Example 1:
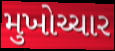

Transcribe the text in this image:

મુખોચ્ચાર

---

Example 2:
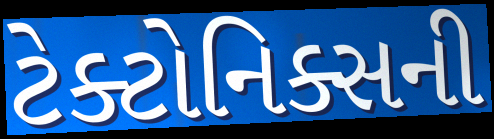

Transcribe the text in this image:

ટેક્ટોનિક્સની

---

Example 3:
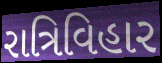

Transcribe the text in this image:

રાત્રિવિહાર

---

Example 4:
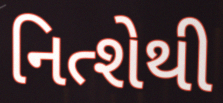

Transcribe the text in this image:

નિત્શેથી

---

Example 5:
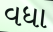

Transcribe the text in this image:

વધા